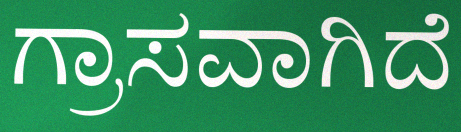
ಗ್ರಾಸವಾಗಿದೆ